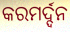
କରମର୍ଦ୍ଦନ